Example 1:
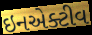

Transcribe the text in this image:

ઇનએક્ટીવ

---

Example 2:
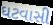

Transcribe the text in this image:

ઘટવાસી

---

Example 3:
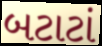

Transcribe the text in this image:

બટાટાં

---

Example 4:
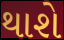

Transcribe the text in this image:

થાશે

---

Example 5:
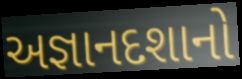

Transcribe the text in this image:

અજ્ઞાનદશાનો